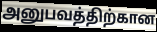
அனுபவத்திற்கான